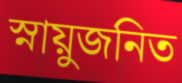
স্নায়ুজনিত